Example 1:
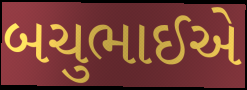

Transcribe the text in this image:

બચુભાઈએ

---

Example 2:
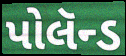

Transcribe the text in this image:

પોલૅન્ડ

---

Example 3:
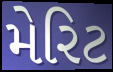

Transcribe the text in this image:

મેરિટ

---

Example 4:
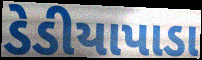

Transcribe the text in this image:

ડેડીયાપાડા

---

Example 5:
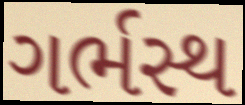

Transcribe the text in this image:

ગર્ભસ્થ